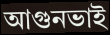
আগুনভাই